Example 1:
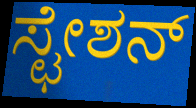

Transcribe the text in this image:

ಸ್ಟೇಶನ್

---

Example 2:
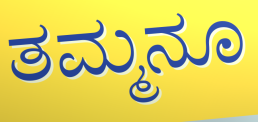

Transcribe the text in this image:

ತಮ್ಮನೂ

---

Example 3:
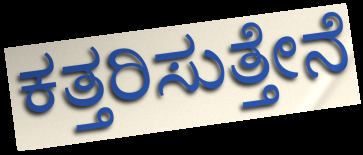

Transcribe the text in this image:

ಕತ್ತರಿಸುತ್ತೇನೆ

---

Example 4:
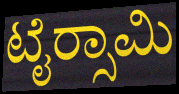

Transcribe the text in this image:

ಟೈರ‍್ಸಾಮಿ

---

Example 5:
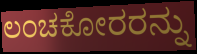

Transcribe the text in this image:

ಲಂಚಕೋರರನ್ನು